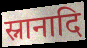
स्नानादि